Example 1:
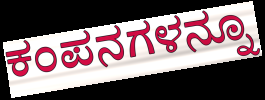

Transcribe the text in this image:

ಕಂಪನಗಳನ್ನೂ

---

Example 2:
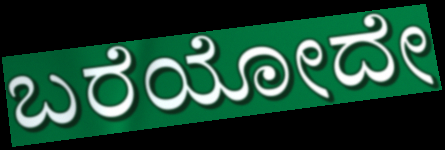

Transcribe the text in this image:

ಬರೆಯೋದೇ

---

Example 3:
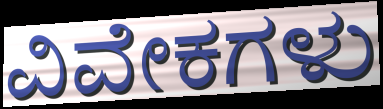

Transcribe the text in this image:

ವಿವೇಕಗಳು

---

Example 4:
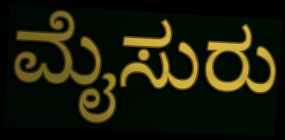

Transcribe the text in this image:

ಮೈಸುರು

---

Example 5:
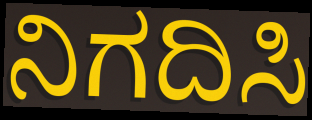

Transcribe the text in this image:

ನಿಗದಿಸಿ